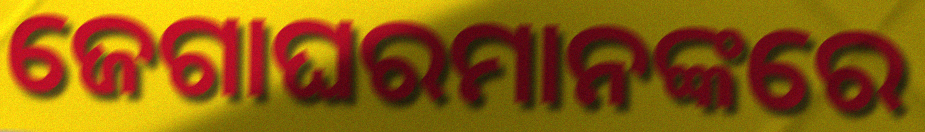
ଜେଗାଘରମାନଙ୍କରେ